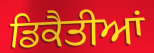
ਡਿਕੈਤੀਆਂ